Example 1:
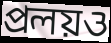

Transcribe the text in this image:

প্রলয়ও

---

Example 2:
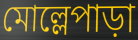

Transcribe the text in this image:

মোল্লেপাড়া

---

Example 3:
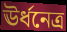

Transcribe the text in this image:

ঊর্ধনেত্র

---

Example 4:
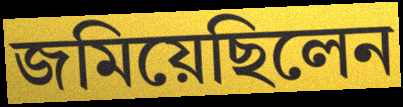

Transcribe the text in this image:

জমিয়েছিলেন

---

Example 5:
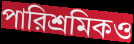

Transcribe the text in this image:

পারিশ্রমিকও